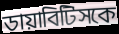
ডায়াবিটিসকে